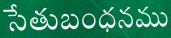
సేతుబంధనము